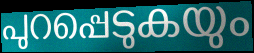
പുറപ്പെടുകയും